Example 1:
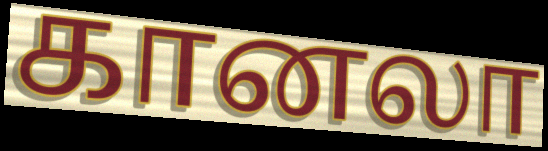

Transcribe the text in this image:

கானலா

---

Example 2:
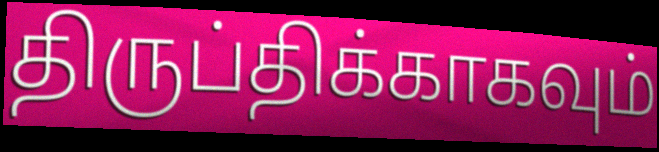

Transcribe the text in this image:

திருப்திக்காகவும்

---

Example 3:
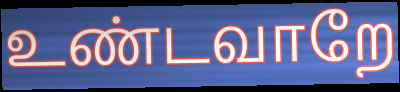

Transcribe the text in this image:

உண்டவாறே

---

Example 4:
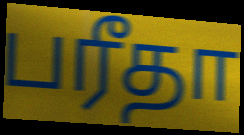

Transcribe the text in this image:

பரீதா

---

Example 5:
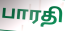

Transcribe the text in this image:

பாரதி